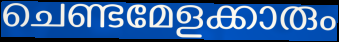
ചെണ്ടമേളക്കാരും